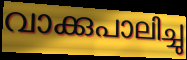
വാക്കുപാലിച്ചു